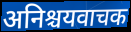
अनिश्चयवाचक